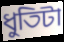
ধুতিটা